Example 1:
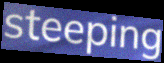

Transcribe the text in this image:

steeping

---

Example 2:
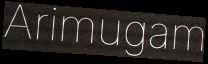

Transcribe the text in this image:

Arimugam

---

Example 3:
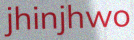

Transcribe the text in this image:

jhinjhwo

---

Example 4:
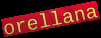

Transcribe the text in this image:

orellana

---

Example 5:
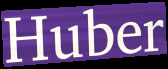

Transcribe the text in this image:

Huber